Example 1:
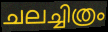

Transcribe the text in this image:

ചലച്ചിത്രം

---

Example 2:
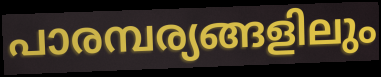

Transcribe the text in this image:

പാരമ്പര്യങ്ങളിലും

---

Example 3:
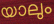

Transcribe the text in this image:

യാലും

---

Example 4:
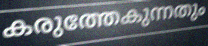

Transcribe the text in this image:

കരുത്തേകുന്നതും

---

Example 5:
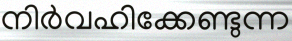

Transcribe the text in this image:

നിർവഹിക്കേണ്ടുന്ന